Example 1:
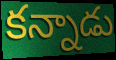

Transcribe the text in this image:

కన్నాడు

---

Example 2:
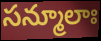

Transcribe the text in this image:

సన్మూలాః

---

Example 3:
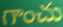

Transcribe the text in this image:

గాంచు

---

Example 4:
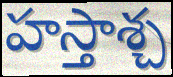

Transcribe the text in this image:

హస్తాశ్చ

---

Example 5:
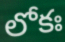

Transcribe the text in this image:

లోకః